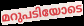
മറുപടിയോടെ